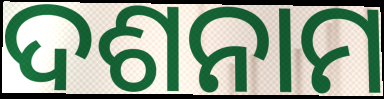
ଦଶନାମ